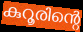
കുറൂരിന്റെ